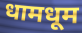
धामधूम